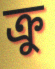
ক্রু